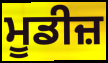
ਮੂਡੀਜ਼